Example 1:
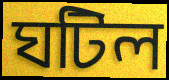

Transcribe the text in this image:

ঘটিল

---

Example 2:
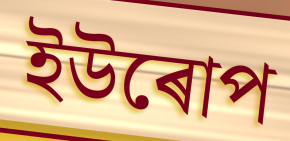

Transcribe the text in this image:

ইউৰোপ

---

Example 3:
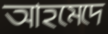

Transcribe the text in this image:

আহমেদে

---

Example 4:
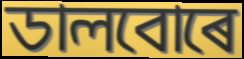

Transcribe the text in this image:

ডালবোৰে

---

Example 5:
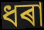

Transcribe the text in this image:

ধৰা